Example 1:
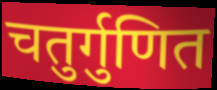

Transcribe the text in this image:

चतुर्गुणित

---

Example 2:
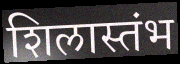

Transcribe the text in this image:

शिलास्तंभ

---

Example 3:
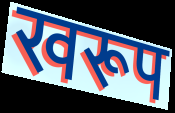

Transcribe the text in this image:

खरूप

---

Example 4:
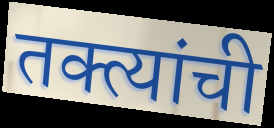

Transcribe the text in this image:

तक्त्यांची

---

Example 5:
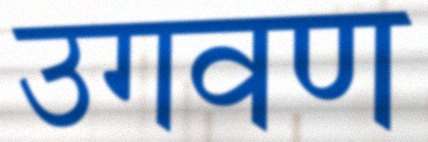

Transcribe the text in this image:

उगवण